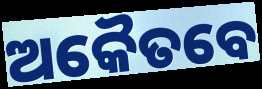
ଅକୈତବେ